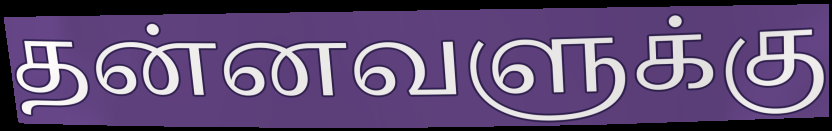
தன்னவளுக்கு